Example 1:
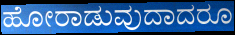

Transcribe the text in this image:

ಹೋರಾಡುವುದಾದರೂ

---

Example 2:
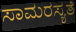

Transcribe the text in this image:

ಸಾಮರಸ್ಯತೆ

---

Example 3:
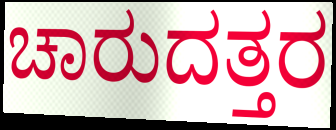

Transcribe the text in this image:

ಚಾರುದತ್ತರ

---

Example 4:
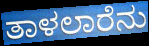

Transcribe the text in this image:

ತಾಳಲಾರೆನು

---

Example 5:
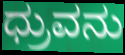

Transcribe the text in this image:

ಧ್ರುವನು